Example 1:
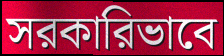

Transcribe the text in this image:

সরকারিভাবে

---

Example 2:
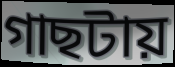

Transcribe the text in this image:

গাছটায়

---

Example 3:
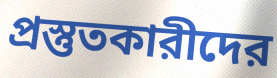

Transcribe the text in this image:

প্রস্তুতকারীদের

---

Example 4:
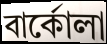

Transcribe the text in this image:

বার্কোলা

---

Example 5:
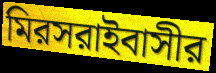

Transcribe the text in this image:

মিরসরাইবাসীর